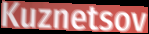
Kuznetsov